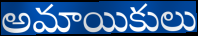
అమాయికులు